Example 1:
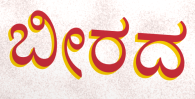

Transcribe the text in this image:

ಬೀರದ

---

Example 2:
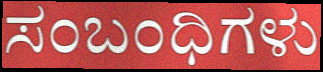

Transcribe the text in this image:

ಸಂಬಂಧಿಗಳು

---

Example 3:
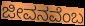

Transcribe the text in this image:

ಜೀವನವೆಂಬ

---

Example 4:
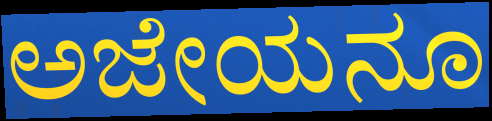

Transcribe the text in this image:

ಅಜೇಯನೂ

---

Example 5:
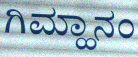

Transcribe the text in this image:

ಗಿಮ್ಹಾನಂ